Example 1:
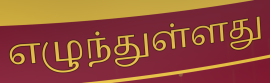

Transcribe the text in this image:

எழுந்துள்ளது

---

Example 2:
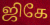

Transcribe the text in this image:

ஜிகே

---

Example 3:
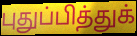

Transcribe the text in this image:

புதுப்பித்துக்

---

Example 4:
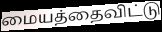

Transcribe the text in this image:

மையத்தைவிட்டு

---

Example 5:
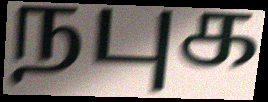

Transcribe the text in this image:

நபுக